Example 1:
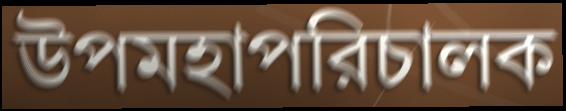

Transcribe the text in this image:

উপমহাপরিচালক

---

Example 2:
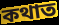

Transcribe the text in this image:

কথাত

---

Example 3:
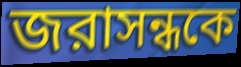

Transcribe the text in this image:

জরাসন্ধকে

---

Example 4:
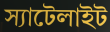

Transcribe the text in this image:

স্যাটেলাইট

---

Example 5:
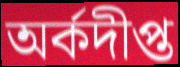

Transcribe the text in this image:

অর্কদীপ্ত